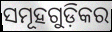
ସମୂହଗୁଡ଼ିକର